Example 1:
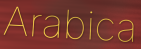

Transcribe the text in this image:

Arabica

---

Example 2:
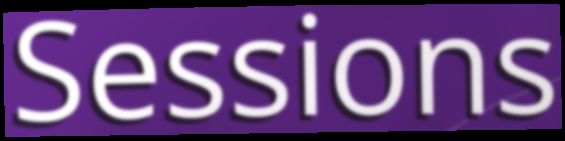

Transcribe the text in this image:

Sessions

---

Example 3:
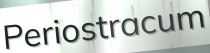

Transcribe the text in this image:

Periostracum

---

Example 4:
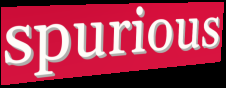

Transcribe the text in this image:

spurious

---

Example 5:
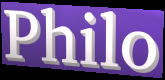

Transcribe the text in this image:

Philo